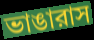
ভাঙারাস